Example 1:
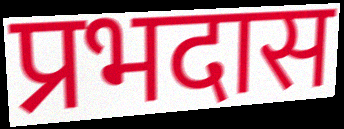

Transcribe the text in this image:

प्रभदास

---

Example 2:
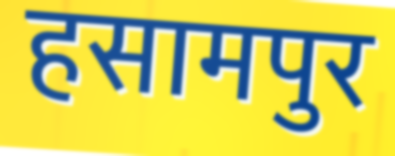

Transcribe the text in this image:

हसामपुर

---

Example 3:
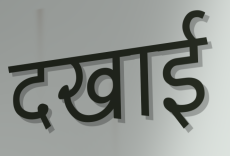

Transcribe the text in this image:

दखाई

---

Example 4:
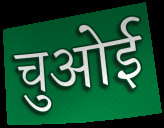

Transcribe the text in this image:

चुओई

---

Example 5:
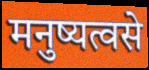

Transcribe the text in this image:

मनुष्यत्वसे